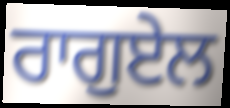
ਰਾਗੁਏਲ